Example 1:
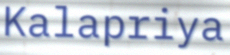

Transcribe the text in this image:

Kalapriya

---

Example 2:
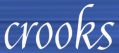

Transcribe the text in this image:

crooks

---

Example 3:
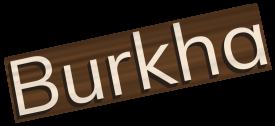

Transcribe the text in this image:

Burkha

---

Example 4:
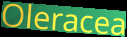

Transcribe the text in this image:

Oleracea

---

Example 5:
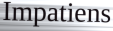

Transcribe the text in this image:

Impatiens